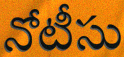
నోటీసు